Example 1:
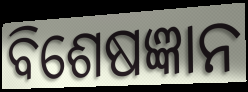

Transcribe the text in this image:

ବିଶେଷଜ୍ଞାନ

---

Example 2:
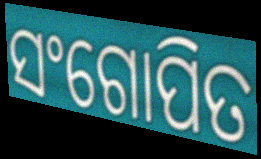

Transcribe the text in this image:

ସଂଗୋପିତ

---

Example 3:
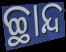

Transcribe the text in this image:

ଚ୍ଛାନ୍ଦ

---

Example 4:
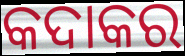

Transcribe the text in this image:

କଦାକର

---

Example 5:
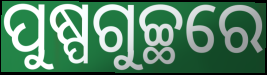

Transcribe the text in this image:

ପୁଷ୍ପଗୁଚ୍ଛରେ